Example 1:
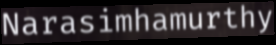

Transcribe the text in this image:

Narasimhamurthy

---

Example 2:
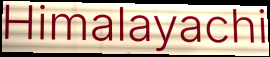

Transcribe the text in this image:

Himalayachi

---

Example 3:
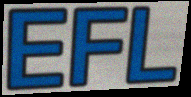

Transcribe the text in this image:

EFL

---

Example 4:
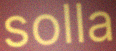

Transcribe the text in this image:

solla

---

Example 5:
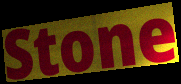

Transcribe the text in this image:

Stone